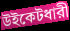
উইকেটধারী